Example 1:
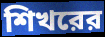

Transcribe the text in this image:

শিখরের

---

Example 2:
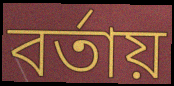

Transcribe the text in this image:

বর্তায়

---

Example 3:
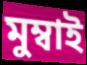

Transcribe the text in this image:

মুম্বাই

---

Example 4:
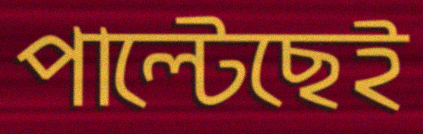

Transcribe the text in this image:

পাল্টেছেই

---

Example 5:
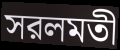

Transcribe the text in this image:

সরলমতী